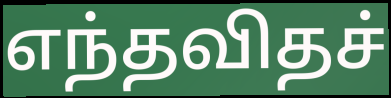
எந்தவிதச்